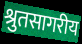
श्रुतसागरीय